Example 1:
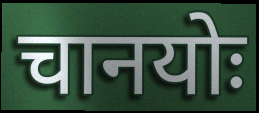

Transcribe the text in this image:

चानयोः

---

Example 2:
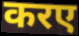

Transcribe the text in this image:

करए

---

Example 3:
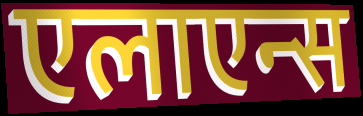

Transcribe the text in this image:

एलाएन्स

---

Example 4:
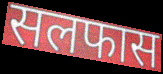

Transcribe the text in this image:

सलफास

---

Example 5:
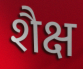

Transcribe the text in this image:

शैक्ष